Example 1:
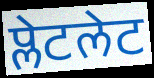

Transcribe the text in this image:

प्लेटलेट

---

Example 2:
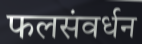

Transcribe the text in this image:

फलसंवर्धन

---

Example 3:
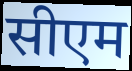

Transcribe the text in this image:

सीएम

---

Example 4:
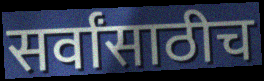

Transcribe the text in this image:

सर्वांसाठीच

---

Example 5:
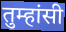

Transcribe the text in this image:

तुम्हांसी